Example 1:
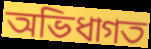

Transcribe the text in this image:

অভিধাগত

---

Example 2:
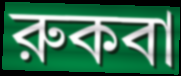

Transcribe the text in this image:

রুকবা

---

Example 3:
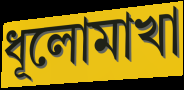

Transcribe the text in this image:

ধূলোমাখা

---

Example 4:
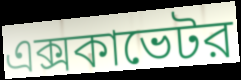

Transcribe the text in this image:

এক্সকাভেটর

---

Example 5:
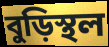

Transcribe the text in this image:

বুড়িস্থল